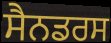
ਸੈਨਡਰਸ